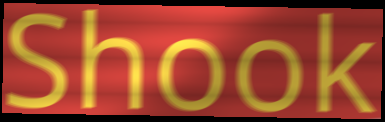
Shook